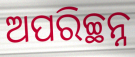
ଅପରିଚ୍ଛନ୍ନ